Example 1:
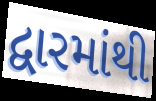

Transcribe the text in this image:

દ્વારમાંથી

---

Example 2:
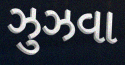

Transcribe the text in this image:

ઝુઝવા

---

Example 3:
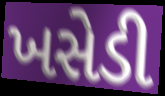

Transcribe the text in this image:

ખસેડી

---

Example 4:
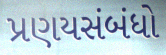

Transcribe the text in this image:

પ્રણયસંબંધો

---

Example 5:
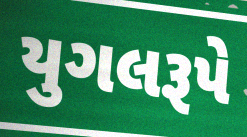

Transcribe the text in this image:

યુગલરૂપે